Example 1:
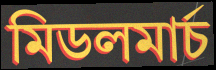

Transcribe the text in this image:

মিডলমাৰ্চ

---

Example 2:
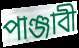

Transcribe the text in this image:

পাঞ্জাবী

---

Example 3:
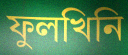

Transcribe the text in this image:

ফুলখিনি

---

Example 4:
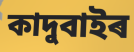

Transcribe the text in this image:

কাদুবাইৰ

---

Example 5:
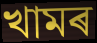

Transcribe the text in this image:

খামৰ